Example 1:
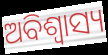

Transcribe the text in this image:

ଅବିଶ୍ଵାସ୍ୟ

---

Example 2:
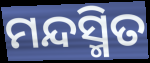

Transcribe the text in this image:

ମନ୍ଦସ୍ମିତ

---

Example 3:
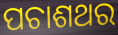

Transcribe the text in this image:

ପଚାଶଥର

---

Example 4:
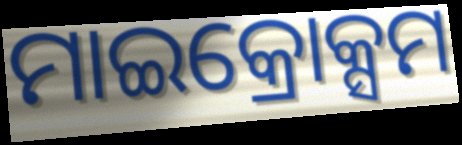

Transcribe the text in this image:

ମାଇକ୍ରୋକ୍ସମ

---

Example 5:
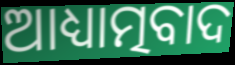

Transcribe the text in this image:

ଆଧ୍ୟାତ୍ମବାଦ